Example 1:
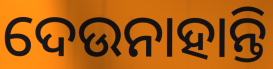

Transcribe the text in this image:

ଦେଉନାହାନ୍ତି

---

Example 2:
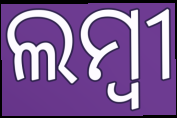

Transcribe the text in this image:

ଲମ୍ବୀ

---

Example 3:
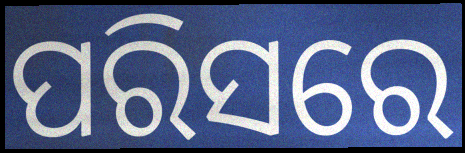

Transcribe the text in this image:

ପରିସରେ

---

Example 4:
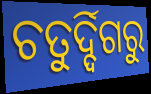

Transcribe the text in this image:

ଚତୁର୍ଦ୍ଦିଗରୁ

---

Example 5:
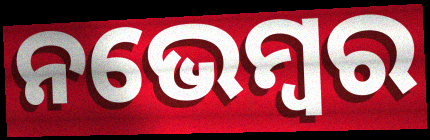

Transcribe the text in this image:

ନଭେମ୍ବର